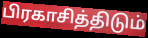
பிரகாசித்திடும்